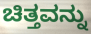
ಚಿತ್ತವನ್ನು